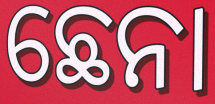
ଛେନା